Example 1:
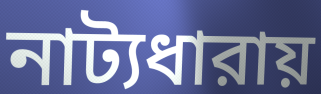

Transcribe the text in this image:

নাট্যধারায়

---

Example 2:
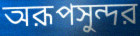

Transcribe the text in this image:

অরূপসুন্দর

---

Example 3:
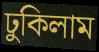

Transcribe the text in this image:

ঢুকিলাম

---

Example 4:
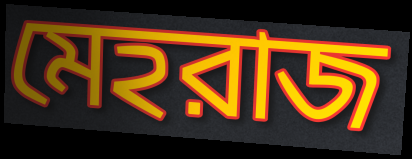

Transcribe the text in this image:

মেহরাজ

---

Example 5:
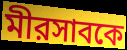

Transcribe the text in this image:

মীরসাবকে